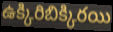
ఉక్కిరిబిక్కిరయి